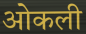
ओकली